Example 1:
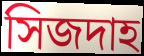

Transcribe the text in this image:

সিজদাহ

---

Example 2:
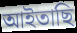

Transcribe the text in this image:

আইতাছি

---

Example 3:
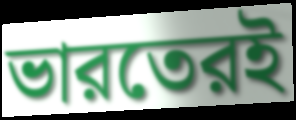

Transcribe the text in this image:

ভারতেরই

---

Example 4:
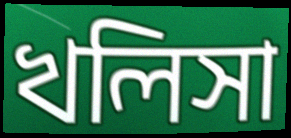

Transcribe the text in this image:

খলিসা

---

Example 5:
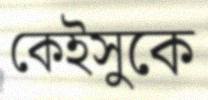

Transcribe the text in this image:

কেইসুকে